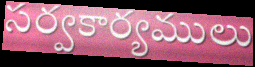
సర్వకార్యములు